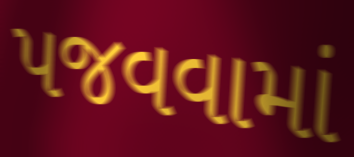
પજવવામાં